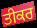
ਤੀਕਰ